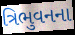
ત્રિભુવનના